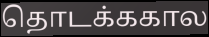
தொடக்ககால